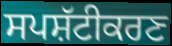
ਸਪਸ਼ੱਟੀਕਰਣ